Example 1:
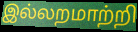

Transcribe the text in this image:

இல்லறமாற்றி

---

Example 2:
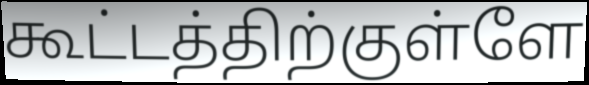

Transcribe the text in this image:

கூட்டத்திற்குள்ளே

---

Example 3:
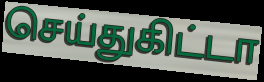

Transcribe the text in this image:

செய்துகிட்டா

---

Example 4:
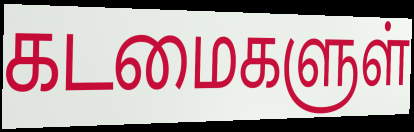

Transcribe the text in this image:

கடமைகளுள்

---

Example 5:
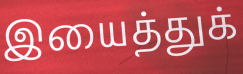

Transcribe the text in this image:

இயைத்துக்